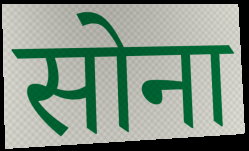
सोना